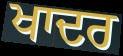
ਖਾਦਰ